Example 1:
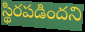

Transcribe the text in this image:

స్థిరపడిందని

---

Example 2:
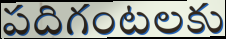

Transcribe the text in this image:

పదిగంటలకు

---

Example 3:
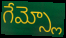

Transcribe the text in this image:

గేమ్స్లో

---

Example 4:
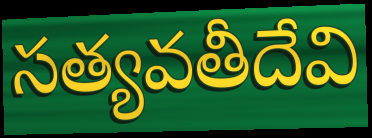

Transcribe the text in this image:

సత్యవతీదేవి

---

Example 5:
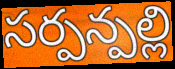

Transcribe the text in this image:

సర్పన్పల్లి